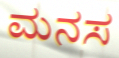
ಮನಸ